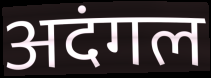
अदंगल